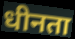
धीनता